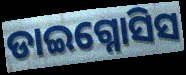
ଡାଇଗ୍ନୋସିସ